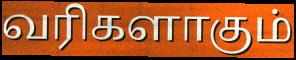
வரிகளாகும்